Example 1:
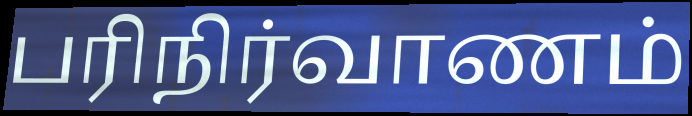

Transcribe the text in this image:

பரிநிர்வாணம்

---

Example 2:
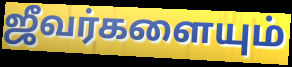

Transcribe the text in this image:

ஜீவர்களையும்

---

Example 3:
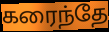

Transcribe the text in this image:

கரைந்தே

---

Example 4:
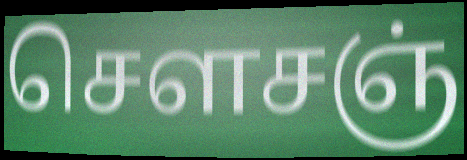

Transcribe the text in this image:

செளசஞ்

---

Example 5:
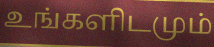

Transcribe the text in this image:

உங்களிடமும்